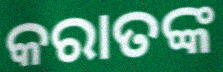
କରାତଙ୍କ